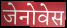
जेनोवेस